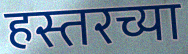
हस्तरच्या